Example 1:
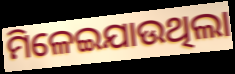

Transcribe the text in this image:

ମିଳେଇଯାଉଥିଲା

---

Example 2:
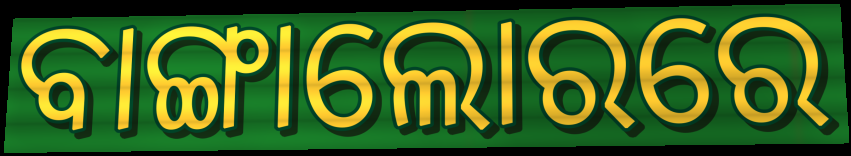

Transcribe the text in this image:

ବାଙ୍ଗାଲୋରରେ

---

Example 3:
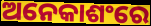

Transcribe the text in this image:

ଅନେକାଶଂରେ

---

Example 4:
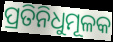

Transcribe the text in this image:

ପ୍ରତିନିଧୁମୂଳକ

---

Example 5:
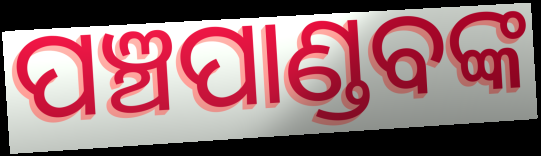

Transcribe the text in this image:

ପଞ୍ଚପାଣ୍ଡବଙ୍କ